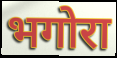
भगोरा